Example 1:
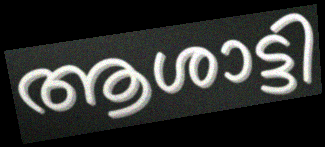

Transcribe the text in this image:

ആശാട്ടി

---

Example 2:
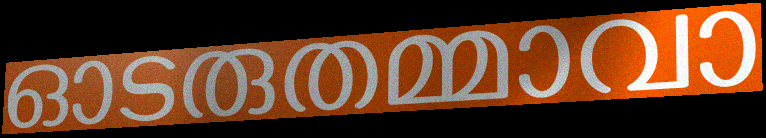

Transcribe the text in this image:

ഓടരുതമ്മാവാ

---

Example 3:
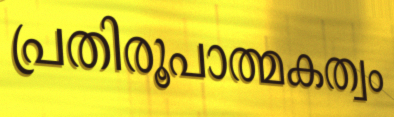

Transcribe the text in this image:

പ്രതിരൂപാത്മകത്വം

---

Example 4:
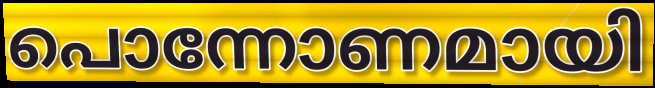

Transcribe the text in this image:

പൊന്നോണമായി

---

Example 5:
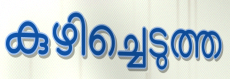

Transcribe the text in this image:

കുഴിച്ചെടുത്ത